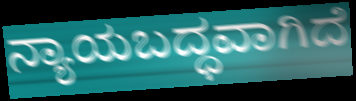
ನ್ಯಾಯಬದ್ಧವಾಗಿದೆ